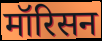
मॉरिसन